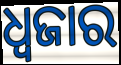
ଧ୍ୱଜାର